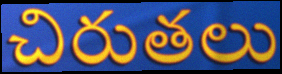
చిరుతలు